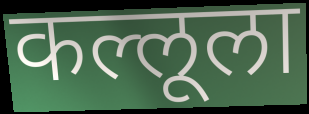
कल्लूला